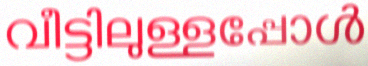
വീട്ടിലുള്ളപ്പോൾ